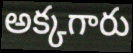
అక్కగారు